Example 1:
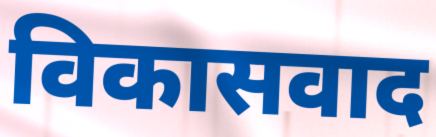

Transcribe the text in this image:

विकासवाद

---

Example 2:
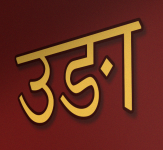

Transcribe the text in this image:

उङा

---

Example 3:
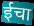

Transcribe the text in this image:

ईचा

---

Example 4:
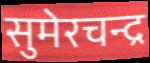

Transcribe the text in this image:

सुमेरचन्द्र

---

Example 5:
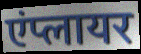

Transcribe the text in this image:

एंप्लायर